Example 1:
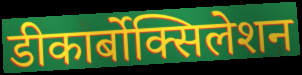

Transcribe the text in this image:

डीकार्बोक्सिलेशन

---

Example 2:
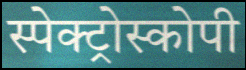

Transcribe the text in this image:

स्पेक्ट्रोस्कोपी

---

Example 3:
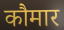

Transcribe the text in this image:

कौमार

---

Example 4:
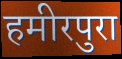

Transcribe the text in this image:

हमीरपुरा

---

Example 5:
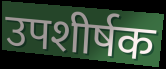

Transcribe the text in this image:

उपशीर्षक